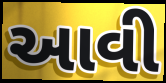
આવી